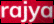
rajya